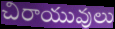
చిరాయువులు